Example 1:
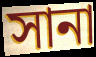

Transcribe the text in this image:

সানা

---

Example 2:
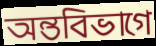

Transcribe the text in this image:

অন্তবিভাগে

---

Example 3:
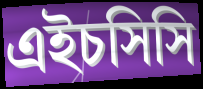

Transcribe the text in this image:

এইচসিসি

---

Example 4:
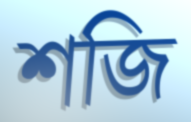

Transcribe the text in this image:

শজি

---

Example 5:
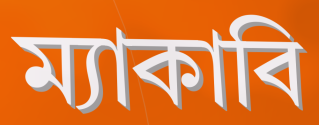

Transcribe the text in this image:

ম্যাকাবি